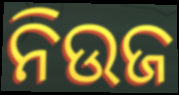
ନିଉଜ